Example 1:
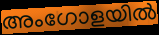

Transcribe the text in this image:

അംഗോളയിൽ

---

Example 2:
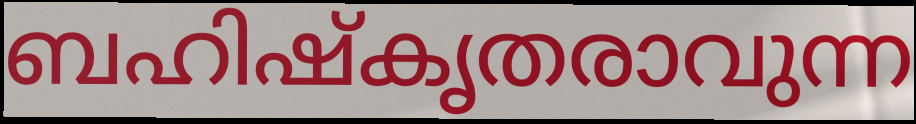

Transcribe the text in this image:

ബഹിഷ്കൃതരാവുന്ന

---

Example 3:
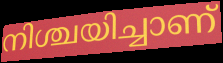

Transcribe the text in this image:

നിശ്ചയിച്ചാണ്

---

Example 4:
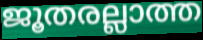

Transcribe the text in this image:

ജൂതരല്ലാത്ത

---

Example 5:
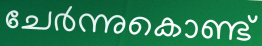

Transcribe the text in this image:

ചേർന്നുകൊണ്ട്